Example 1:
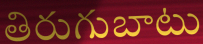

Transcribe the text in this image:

తిరుగుబాటు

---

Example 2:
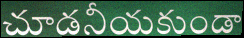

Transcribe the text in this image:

చూడనీయకుండా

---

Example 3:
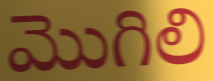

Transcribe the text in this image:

మొగిలి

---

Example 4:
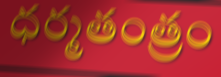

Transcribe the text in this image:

ధర్మతంత్రం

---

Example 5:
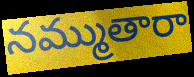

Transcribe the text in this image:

నమ్ముతారా